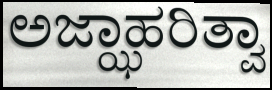
ಅಜ್ಝಾಹರಿತ್ವಾ